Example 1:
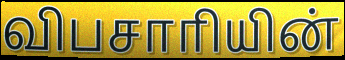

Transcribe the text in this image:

விபசாரியின்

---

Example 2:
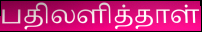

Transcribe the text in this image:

பதிலளித்தாள்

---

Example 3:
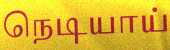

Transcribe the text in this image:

நெடியாய்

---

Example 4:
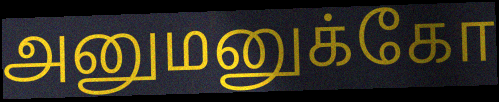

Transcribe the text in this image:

அனுமனுக்கோ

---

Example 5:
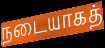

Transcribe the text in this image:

நடையாகத்